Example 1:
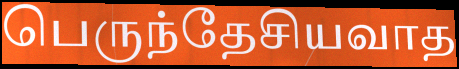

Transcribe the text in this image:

பெருந்தேசியவாத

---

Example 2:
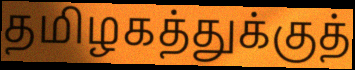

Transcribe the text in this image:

தமிழகத்துக்குத்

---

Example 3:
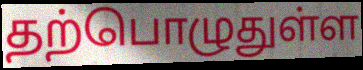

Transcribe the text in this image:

தற்பொழுதுள்ள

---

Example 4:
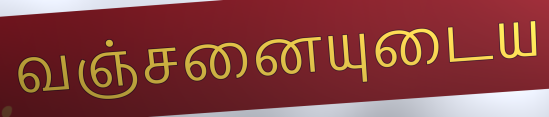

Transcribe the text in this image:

வஞ்சனையுடைய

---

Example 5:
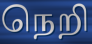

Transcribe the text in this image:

நெறி